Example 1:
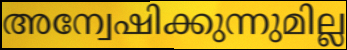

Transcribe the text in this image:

അന്വേഷിക്കുന്നുമില്ല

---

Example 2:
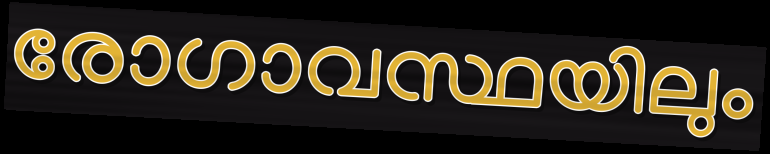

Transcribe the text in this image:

രോഗാവസ്ഥയിലും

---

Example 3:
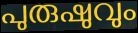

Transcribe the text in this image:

പുരുഷുവും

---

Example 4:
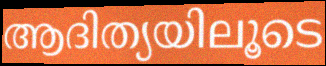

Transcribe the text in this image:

ആദിത്യയിലൂടെ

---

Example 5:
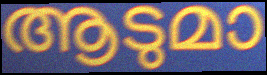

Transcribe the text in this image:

ആടുമാ